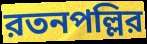
রতনপল্লির